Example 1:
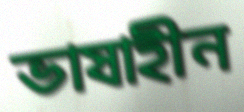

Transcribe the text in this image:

ভাষাহীন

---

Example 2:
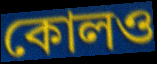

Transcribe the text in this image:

কোলও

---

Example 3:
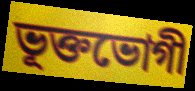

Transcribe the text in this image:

ভূক্তভোগী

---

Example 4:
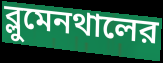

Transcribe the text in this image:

ব্লুমেনথালের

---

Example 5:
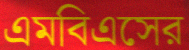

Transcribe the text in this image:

এমবিএসের